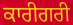
ਕਾਰੀਗਰੀ